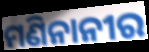
ମଣିନାନୀର